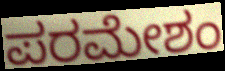
ಪರಮೇಶಂ